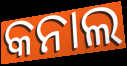
କନାଲ